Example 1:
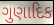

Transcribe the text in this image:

ગુણાદિક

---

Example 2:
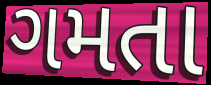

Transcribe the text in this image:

ગમતા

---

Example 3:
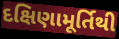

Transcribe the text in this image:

દક્ષિણામૂર્તિથી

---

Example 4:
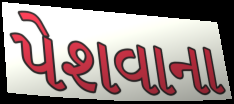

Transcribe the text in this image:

પેશવાના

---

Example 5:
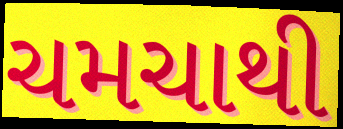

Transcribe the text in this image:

ચમચાથી